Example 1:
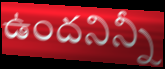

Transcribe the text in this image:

ఉందనిన్నీ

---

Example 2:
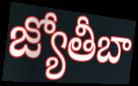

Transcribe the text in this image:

జ్యోతీబా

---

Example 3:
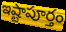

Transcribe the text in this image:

ఇష్టాపూర్తం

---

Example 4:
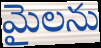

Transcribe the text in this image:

మైలను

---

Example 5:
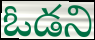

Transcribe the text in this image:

ఓడని